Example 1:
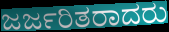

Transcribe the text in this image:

ಜರ್ಜರಿತರಾದರು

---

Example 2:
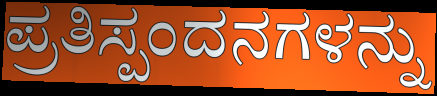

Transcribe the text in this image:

ಪ್ರತಿಸ್ಪಂದನಗಳನ್ನು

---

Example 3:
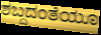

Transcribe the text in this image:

ಶಬ್ದದಂತೆಯೂ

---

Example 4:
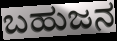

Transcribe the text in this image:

ಬಹುಜನ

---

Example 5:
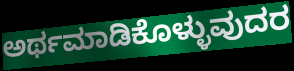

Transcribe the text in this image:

ಅರ್ಥಮಾಡಿಕೊಳ್ಳುವುದರ